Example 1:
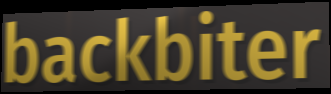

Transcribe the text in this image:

backbiter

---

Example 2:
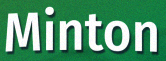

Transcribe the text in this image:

Minton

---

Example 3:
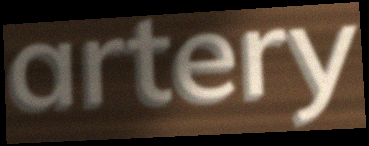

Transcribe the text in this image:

artery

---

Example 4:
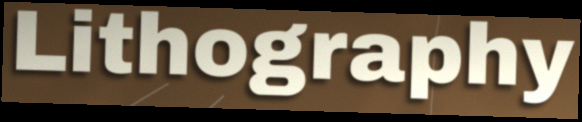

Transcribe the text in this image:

Lithography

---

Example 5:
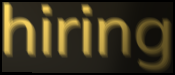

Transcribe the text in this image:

hiring